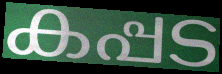
കപ്പട